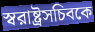
স্বরাষ্ট্রসচিবকে